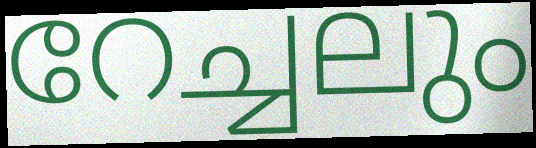
റേച്ചലും